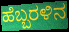
ಹೆಬ್ಬರಳಿನ